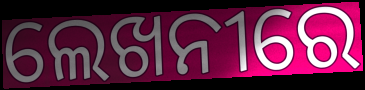
ଲେଖନୀରେ